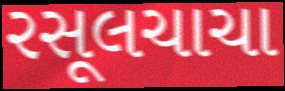
રસૂલચાચા